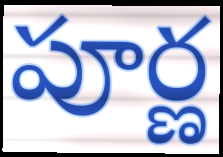
పూర్ణ